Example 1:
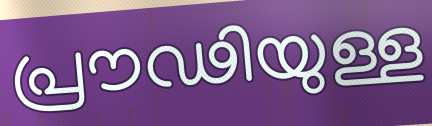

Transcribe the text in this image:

പ്രൗഢിയുള്ള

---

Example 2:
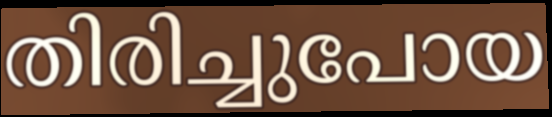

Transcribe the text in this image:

തിരിച്ചുപോയ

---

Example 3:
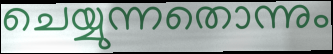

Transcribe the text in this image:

ചെയ്യുന്നതൊന്നും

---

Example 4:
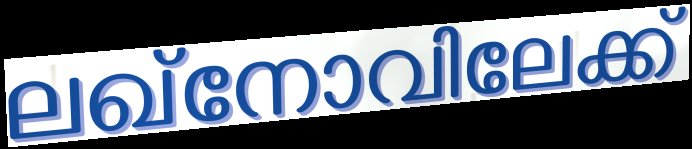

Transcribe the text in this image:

ലഖ്നോവിലേക്ക്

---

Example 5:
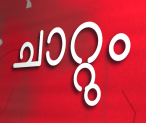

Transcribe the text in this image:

ചാറ്റും